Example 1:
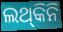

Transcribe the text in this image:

ଲଥ୍‍କିନି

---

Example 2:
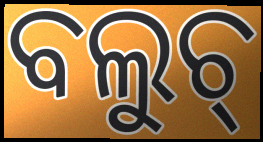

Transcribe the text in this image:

ବଲୁଚ୍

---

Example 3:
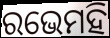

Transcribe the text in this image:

ରଭେମହି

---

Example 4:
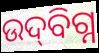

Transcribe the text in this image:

ଉଦ୍‌ବିଗ୍ନ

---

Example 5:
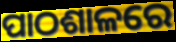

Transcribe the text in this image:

ପାଠଶାଳରେ